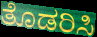
ತೊಡರಿಸಿ